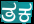
ತಕ